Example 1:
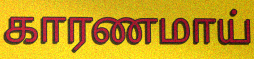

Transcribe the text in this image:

காரணமாய்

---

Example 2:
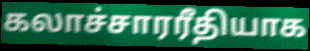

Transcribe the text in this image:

கலாச்சாரரீதியாக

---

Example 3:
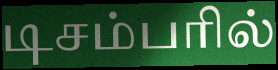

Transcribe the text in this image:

டிசம்பரில்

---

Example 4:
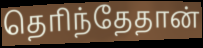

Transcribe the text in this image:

தெரிந்தேதான்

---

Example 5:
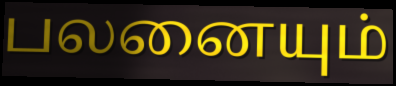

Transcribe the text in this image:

பலனையும்